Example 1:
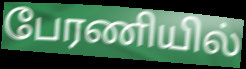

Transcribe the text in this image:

பேரணியில்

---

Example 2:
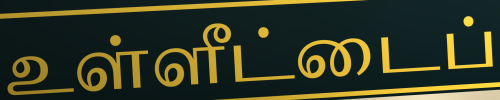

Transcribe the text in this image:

உள்ளீட்டைப்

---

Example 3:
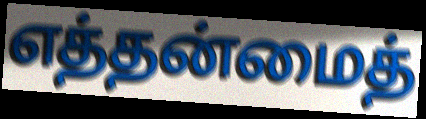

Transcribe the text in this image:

எத்தன்மைத்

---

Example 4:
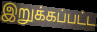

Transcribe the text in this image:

இறுக்கப்பட்ட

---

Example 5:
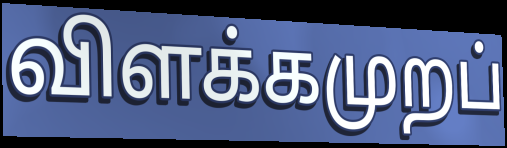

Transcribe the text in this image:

விளக்கமுறப்